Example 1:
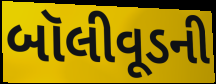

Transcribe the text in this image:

બૉલીવૂડની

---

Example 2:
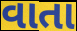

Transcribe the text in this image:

વાતા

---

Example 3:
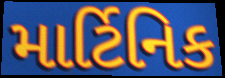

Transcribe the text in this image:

માર્ટિનિક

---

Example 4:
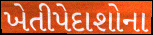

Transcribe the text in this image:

ખેતીપેદાશોના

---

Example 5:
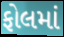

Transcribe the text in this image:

ફોલમાં